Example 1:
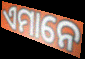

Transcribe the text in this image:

ଏମାନେ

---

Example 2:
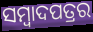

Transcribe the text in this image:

ସମ୍ବାଦପତ୍ରର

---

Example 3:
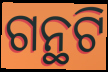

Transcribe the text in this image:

ଗନ୍ଥଟି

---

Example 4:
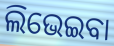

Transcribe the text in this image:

ଲିଭେଇବା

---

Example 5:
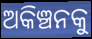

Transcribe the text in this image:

ଅକିଞ୍ଚନକୁ